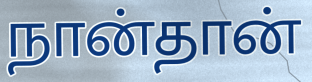
நான்தான்